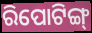
ରିପୋଟିଙ୍ଗ୍